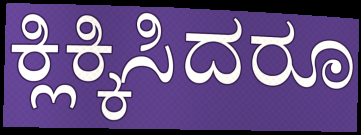
ಕ್ಲಿಕ್ಕಿಸಿದರೂ